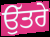
ਉੱਤਰੇ